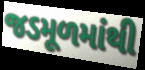
જડમૂળમાંથી